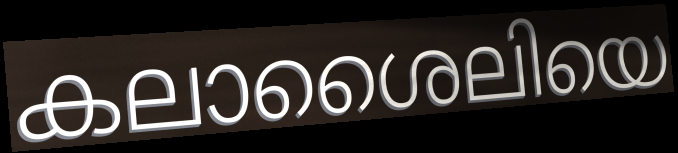
കലാശൈലിയെ